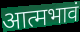
आत्मभावं